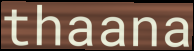
thaana